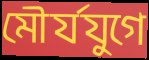
মৌর্যযুগে